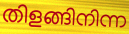
തിളങ്ങിനിന്ന